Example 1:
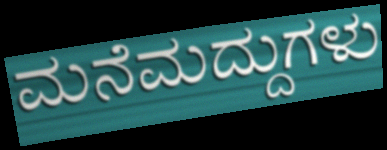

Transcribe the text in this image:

ಮನೆಮದ್ದುಗಳು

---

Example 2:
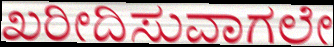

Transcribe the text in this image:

ಖರೀದಿಸುವಾಗಲೇ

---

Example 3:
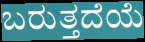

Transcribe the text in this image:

ಬರುತ್ತದೆಯೆ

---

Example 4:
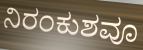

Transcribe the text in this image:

ನಿರಂಕುಶವೂ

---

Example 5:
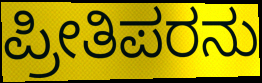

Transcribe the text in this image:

ಪ್ರೀತಿಪರನು